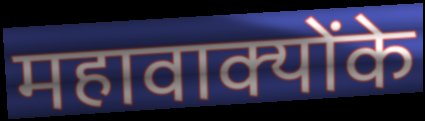
महावाक्योंके